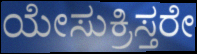
ಯೇಸುಕ್ರಿಸ್ತರೇ